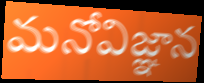
మనోవిజ్ఞాన